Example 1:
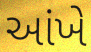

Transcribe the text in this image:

આંખે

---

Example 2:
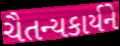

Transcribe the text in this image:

ચૈતન્યકાર્યને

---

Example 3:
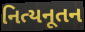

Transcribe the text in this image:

નિત્યનૂતન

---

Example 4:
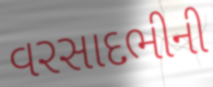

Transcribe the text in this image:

વરસાદભીની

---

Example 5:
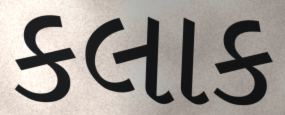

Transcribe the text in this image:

કલાક